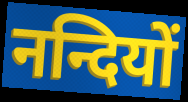
नन्दियों